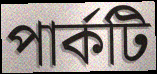
পার্কটি